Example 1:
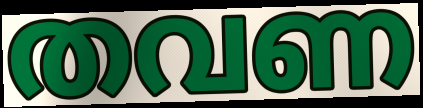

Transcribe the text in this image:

തവണ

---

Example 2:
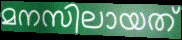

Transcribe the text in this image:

മനസിലായത്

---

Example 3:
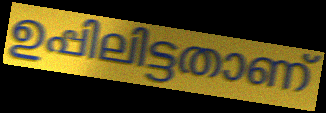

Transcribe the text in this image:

ഉപ്പിലിട്ടതാണ്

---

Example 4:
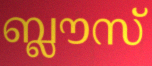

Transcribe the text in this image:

ബ്ലൗസ്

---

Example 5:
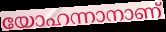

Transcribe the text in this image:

യോഹന്നാനാണ്